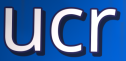
ucr